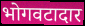
भोगवटादार